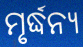
ମୃର୍ଦ୍ଧନ୍ୟ